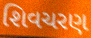
શિવચરણ